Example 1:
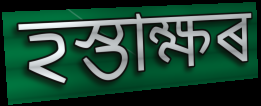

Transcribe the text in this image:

হস্তাক্ষৰ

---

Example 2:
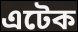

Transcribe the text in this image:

এটেক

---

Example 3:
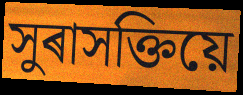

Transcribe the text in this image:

সুৰাসক্তিয়ে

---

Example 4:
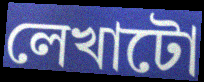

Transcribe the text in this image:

লেখাটো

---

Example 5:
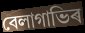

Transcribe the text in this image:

বেলাগাভিৰ